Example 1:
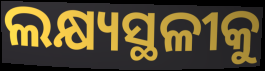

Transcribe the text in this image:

ଲକ୍ଷ୍ୟସ୍ଥଳୀକୁ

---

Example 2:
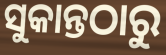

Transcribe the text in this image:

ସୁକାନ୍ତଠାରୁ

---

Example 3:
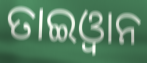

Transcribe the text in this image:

ତାଇଓ୍ୱାନ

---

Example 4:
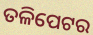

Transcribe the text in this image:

ତଳିପେଟର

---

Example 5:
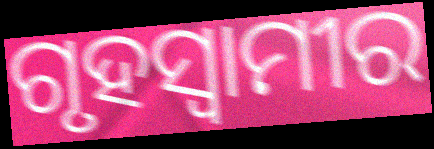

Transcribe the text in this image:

ଗୃହସ୍ୱାମୀର